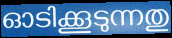
ഓടിക്കൂടുന്നതു